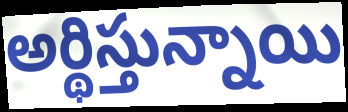
అర్థిస్తున్నాయి